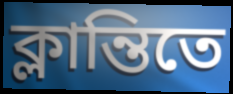
ক্লান্তিতে